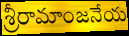
శ్రీరామాంజనేయ